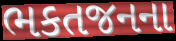
ભકતજનના